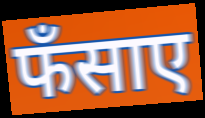
फँसाए